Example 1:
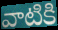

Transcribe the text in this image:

వాటికి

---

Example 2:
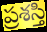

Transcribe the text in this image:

ప్రశస్తి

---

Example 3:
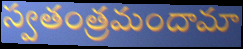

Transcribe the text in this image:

స్వతంత్రమందామా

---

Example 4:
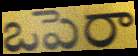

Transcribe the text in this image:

ఒపెరా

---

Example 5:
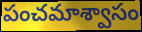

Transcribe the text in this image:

పంచమాశ్వాసం